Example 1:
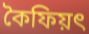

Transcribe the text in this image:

কৈফিয়ৎ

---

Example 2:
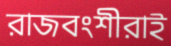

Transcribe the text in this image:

রাজবংশীরাই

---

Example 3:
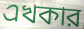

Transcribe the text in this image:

এখকার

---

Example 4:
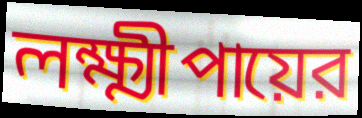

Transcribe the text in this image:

লক্ষ্মীপায়ের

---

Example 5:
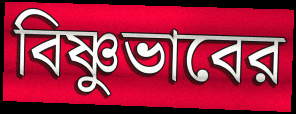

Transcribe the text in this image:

বিষ্ণুভাবের